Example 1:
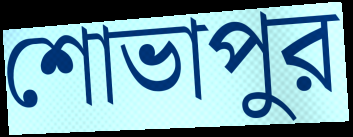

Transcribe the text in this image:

শোভাপুর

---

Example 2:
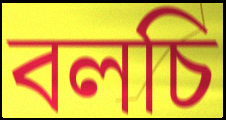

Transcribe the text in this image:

বলচি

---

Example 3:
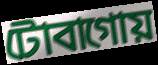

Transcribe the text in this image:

টোবাগোয়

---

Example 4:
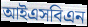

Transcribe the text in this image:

আইএসবিএন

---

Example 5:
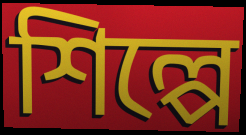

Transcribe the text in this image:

শিল্পে